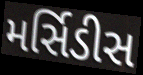
મર્સિડીસ